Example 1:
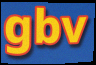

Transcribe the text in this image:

gbv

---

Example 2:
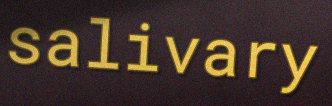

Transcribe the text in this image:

salivary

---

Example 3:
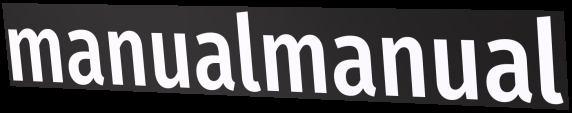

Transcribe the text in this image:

manualmanual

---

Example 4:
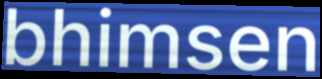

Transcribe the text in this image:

bhimsen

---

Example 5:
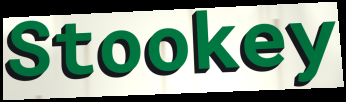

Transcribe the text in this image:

Stookey